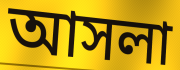
আসলা